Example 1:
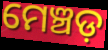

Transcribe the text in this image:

ମେଞ୍ଚଡ଼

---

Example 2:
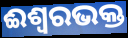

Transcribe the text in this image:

ଈଶ୍ୱରଭକ୍ତ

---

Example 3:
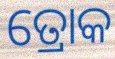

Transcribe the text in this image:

ତ୍ରୋକ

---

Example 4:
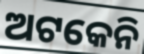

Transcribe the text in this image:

ଅଟକେନି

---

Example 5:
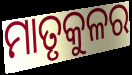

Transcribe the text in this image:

ମାତୃକୁଳର